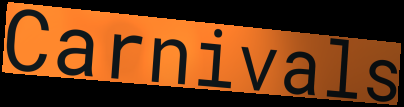
Carnivals